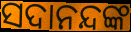
ସଦାନନ୍ଦଙ୍କ